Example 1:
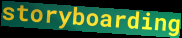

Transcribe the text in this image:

storyboarding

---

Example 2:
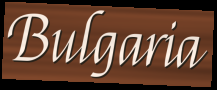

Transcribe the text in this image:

Bulgaria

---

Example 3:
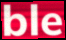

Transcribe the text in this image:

ble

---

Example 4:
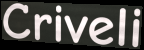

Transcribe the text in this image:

Criveli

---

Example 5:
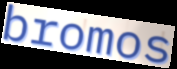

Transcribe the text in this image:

bromos